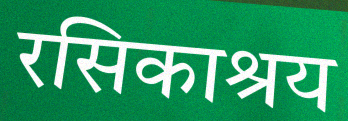
रसिकाश्रय